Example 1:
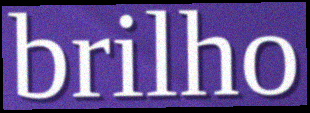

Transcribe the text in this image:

brilho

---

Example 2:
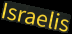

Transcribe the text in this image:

Israelis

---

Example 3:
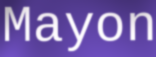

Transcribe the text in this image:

Mayon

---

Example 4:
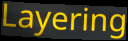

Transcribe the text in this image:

Layering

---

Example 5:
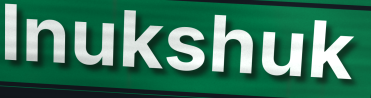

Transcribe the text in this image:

Inukshuk